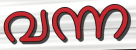
വന്ന